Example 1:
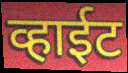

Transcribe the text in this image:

व्हाईट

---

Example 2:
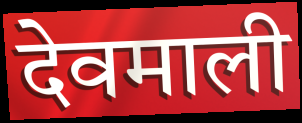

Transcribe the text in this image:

देवमाली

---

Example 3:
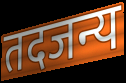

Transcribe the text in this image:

तदजन्य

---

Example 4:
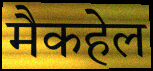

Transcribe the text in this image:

मैकहेल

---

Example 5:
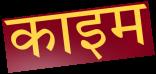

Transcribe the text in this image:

काइम